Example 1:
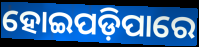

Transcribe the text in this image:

ହୋଇପଡ଼ିପାରେ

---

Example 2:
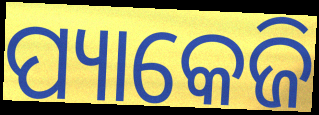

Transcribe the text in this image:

ପ୍ୟାକେଜି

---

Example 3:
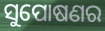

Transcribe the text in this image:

ସୁପୋଷଣର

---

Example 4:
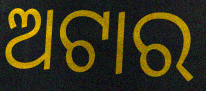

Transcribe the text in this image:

ଅଟାର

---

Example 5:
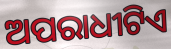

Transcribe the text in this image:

ଅପରାଧୀଟିଏ